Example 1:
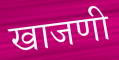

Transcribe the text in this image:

खाजणी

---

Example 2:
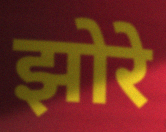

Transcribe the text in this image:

झोरे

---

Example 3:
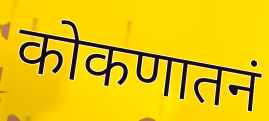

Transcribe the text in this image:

कोकणातनं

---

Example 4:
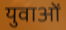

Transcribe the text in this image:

युवाओं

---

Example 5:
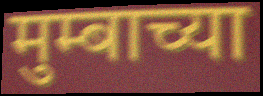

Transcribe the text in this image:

मुम्बाच्या